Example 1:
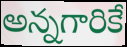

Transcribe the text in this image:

అన్నగారికే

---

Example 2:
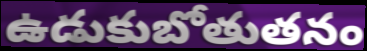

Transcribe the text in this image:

ఉడుకుబోతుతనం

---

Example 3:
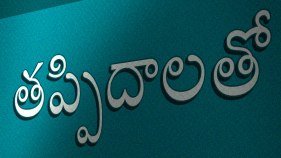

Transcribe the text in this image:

తప్పిదాలతో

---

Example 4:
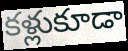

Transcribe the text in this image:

కళ్లుకూడా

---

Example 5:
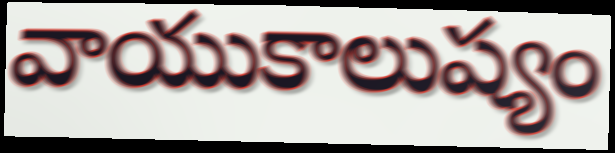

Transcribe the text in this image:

వాయుకాలుష్యం